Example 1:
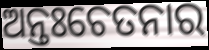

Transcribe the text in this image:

ଅନ୍ତଃଚେତନାର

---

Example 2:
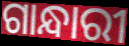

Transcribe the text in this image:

ଗାନ୍ଧାରୀ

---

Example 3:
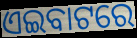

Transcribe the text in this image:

ଏଇବାଟରେ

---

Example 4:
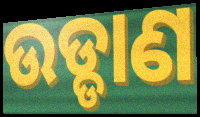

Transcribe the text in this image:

ଉଡ୍ଡାଣ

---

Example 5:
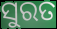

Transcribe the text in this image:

ସୁରତ